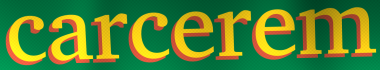
carcerem